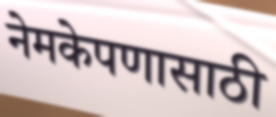
नेमकेपणासाठी